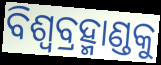
ବିଶ୍ବବ୍ରହ୍ମାଣ୍ଡକୁ